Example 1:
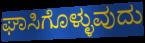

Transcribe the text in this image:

ಘಾಸಿಗೊಳ್ಳುವುದು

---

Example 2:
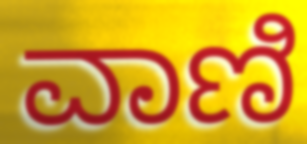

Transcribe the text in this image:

ವಾಣಿ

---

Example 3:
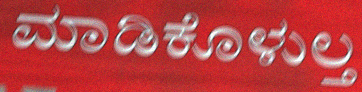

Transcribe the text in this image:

ಮಾಡಿಕೊಳುಲ್ತ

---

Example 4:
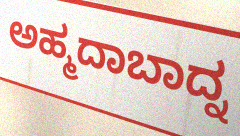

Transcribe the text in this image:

ಅಹ್ಮದಾಬಾದ್ನ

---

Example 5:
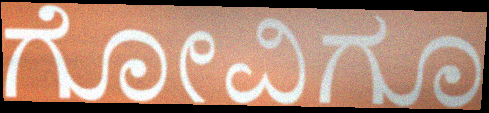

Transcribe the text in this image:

ಗೋವಿಗೂ